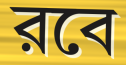
রবে